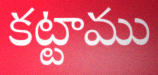
కట్టాము